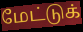
மேட்டுக்